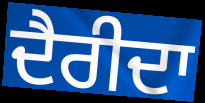
ਦੈਰੀਦਾ